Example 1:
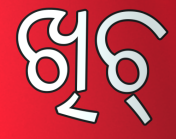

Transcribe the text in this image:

ଖିଚ୍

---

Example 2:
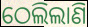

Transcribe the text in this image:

ଠେଲିଲାଣି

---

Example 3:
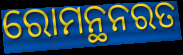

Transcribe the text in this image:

ରୋମନ୍ଥନରତ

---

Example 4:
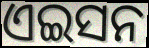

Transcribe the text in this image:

ଏଇସନ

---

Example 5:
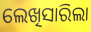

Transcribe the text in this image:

ଲେଖିସାରିଲା